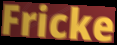
Fricke